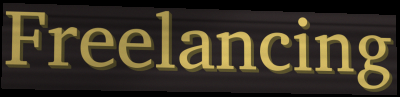
Freelancing